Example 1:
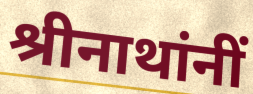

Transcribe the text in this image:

श्रीनाथांनीं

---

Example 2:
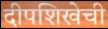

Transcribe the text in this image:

दीपशिखेची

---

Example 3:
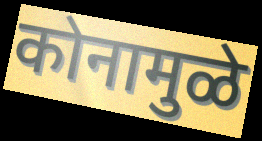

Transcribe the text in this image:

कोनामुळे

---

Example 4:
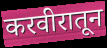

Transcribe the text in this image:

करवीरातून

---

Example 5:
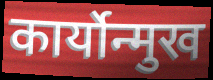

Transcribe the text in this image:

कार्योन्मुख